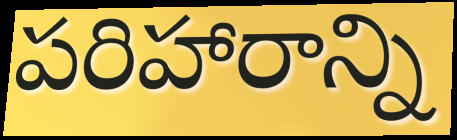
పరిహారాన్ని